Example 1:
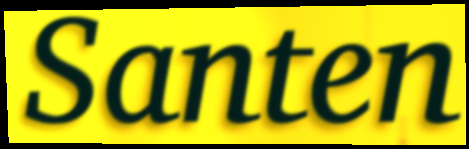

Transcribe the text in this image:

Santen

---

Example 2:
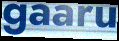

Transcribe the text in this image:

gaaru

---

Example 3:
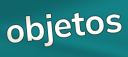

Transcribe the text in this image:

objetos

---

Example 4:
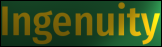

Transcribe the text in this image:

Ingenuity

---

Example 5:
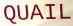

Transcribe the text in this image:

QUAIL